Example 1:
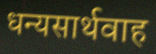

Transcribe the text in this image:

धन्यसार्थवाह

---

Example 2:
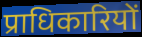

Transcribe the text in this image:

प्राधिकारियों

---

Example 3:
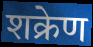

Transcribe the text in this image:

शक्रेण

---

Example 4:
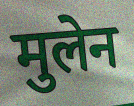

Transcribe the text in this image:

मुलेन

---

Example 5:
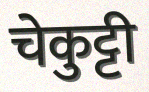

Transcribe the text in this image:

चेकुट्टी